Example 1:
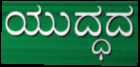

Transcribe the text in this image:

ಯುದ್ಧದ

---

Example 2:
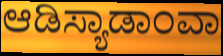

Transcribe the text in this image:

ಆಡಿಸ್ಯಾಡಾಂವಾ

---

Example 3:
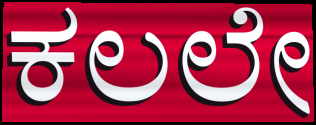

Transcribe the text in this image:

ಕಲಲೇ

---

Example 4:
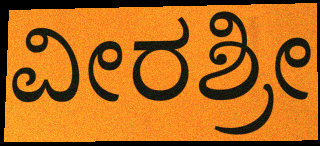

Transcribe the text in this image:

ವೀರಶ್ರೀ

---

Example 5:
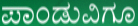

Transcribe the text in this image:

ಪಾಂಡುವಿಗೂ